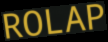
ROLAP